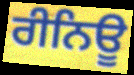
ਰੀਨਿਊ